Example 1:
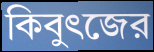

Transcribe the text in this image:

কিবুৎজের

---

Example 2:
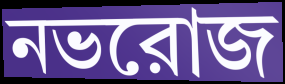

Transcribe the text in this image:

নভরোজ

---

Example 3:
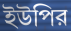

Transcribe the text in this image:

ইউপির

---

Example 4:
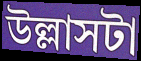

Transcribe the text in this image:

উল্লাসটা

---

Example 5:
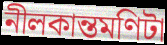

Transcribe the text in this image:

নীলকান্তমণিটা